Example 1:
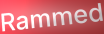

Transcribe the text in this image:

Rammed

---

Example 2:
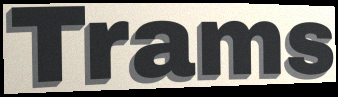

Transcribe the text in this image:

Trams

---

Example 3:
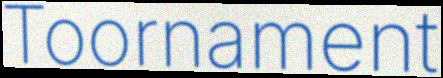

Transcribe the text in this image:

Toornament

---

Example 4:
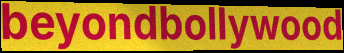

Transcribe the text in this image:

beyondbollywood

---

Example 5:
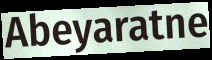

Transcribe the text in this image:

Abeyaratne